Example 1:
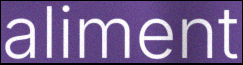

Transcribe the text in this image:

aliment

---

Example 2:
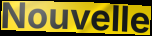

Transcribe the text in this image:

Nouvelle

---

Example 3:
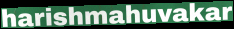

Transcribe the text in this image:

harishmahuvakar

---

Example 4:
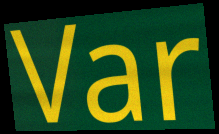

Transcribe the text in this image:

Var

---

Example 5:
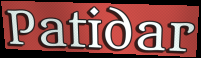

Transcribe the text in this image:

Patidar